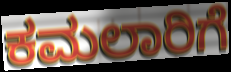
ಕಮಲಾರಿಗೆ